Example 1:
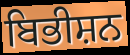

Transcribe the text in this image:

ਬਿਭੀਸ਼ਨ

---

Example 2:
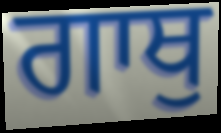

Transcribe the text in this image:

ਗਾਥੁ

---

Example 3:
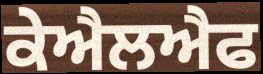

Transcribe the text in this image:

ਕੇਐਲਐਫ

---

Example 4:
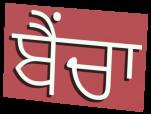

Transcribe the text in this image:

ਬੈਂਚਾ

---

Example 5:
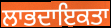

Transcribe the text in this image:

ਲਾਭਦਾਇਕਤਾ